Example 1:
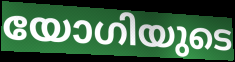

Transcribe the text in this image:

യോഗിയുടെ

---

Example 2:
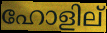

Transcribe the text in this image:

ഹോളില്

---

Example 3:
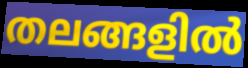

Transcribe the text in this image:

തലങ്ങളിൽ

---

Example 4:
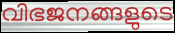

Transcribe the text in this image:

വിഭജനങ്ങളുടെ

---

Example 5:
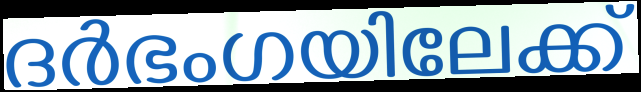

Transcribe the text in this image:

ദർഭംഗയിലേക്ക്